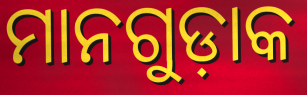
ମାନଗୁଡ଼ାକ